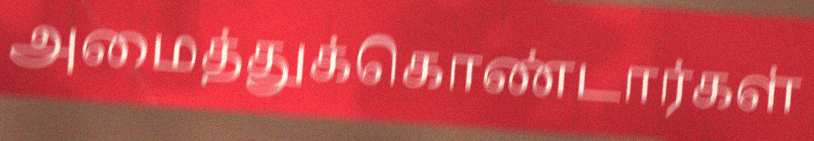
அமைத்துக்கொண்டார்கள்